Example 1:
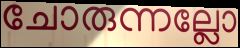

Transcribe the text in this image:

ചോരുന്നല്ലോ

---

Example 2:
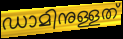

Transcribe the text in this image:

ഡാമിനുള്ളത്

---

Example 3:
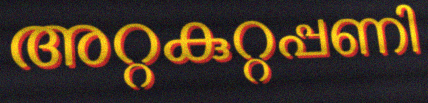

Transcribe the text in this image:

അറ്റകുറ്റപ്പണി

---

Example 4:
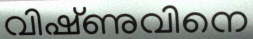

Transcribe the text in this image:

വിഷ്‌ണുവിനെ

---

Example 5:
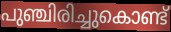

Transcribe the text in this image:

പുഞ്ചിരിച്ചുകൊണ്ട്